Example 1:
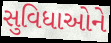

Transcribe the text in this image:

સુવિધાઓને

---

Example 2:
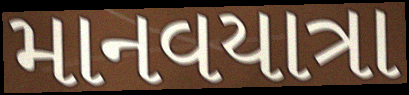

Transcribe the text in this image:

માનવયાત્રા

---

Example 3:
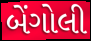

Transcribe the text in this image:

બેંગોલી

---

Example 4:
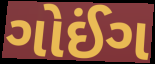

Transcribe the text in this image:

ગોઈંગ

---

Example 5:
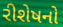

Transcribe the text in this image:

રીશેષનો